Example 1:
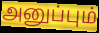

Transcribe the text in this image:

அனுப்பும்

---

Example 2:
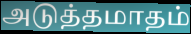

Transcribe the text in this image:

அடுத்தமாதம்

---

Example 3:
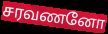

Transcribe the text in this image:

சரவணனோ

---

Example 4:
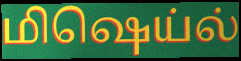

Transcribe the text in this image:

மிஷெய்ல்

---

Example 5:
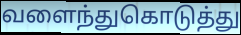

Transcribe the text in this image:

வளைந்துகொடுத்து